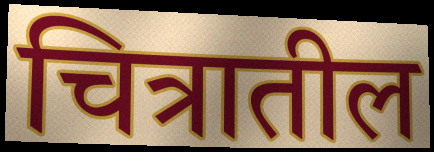
चित्रातील